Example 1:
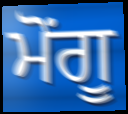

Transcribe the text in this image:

ਮੋਂਗੂ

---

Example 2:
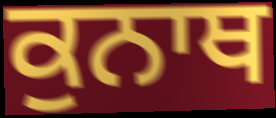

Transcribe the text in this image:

ਕੁਨਾਥ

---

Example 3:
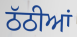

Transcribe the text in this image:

ਠੱਠੀਆਂ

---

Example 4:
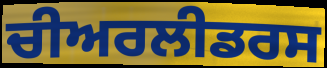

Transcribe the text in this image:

ਚੀਅਰਲੀਡਰਸ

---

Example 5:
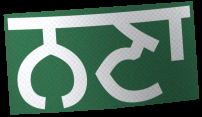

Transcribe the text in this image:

ਨਣਾ